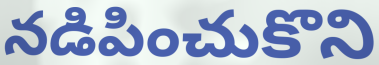
నడిపించుకొని